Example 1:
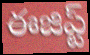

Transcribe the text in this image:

ఈజిప్ట్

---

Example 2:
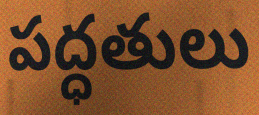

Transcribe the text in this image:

పద్ధతులు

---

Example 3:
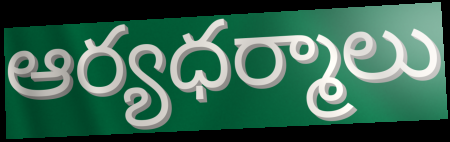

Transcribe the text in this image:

ఆర్యధర్మాలు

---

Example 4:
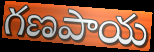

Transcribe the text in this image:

గణపాయ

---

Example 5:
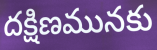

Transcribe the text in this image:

దక్షిణమునకు